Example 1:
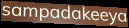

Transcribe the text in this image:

sampadakeeya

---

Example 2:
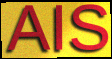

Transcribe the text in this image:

AIS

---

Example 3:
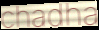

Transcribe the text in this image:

chadha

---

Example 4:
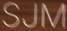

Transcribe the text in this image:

SJM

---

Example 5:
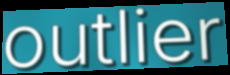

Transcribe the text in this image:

outlier